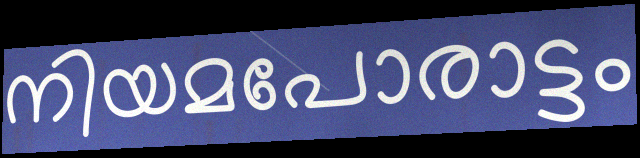
നിയമപോരാട്ടം